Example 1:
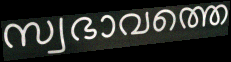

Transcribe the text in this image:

സ്വഭാവത്തെ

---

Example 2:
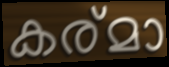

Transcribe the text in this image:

കര്മാ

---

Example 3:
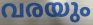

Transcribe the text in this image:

വരയും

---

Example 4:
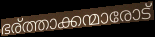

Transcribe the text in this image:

ഭര്ത്താക്കന്മാരോട്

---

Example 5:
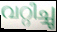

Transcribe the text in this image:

വറ്റിച്ചു